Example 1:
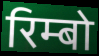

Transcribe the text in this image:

रिम्बो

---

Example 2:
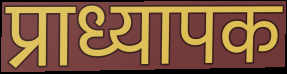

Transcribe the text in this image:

प्राध्यापक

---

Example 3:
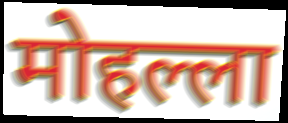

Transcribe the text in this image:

मोहल्‍ला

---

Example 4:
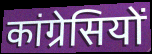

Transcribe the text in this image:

कांग्रेसियों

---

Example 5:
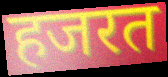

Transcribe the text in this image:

हजरत